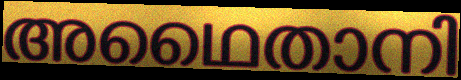
അഥൈതാനി